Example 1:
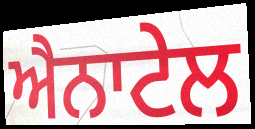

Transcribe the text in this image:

ਐਨਾਟੇਲ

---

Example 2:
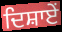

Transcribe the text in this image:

ਦਿਸ਼ਾਏਂ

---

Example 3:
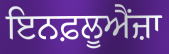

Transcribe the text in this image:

ਇਨਫ਼ਲੂਐਂਜ਼ਾ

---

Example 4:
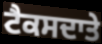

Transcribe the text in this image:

ਟੈਕਸਦਾਤੇ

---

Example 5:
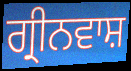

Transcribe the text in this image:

ਗ੍ਰੀਨਵਾਸ਼